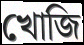
খোজি